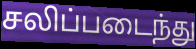
சலிப்படைந்து